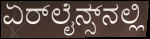
ಏರ್‌ಲೈನ್ಸ್‌ನಲ್ಲಿ